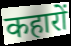
कहारों